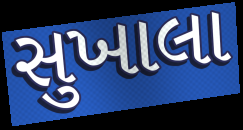
સુખાલા